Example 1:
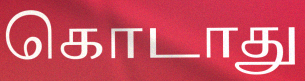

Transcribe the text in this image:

கொடாது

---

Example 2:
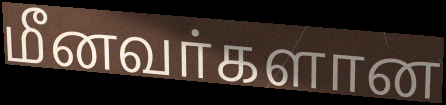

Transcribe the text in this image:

மீனவர்களான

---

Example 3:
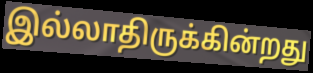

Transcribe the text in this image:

இல்லாதிருக்கின்றது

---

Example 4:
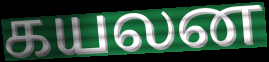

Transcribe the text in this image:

கயலன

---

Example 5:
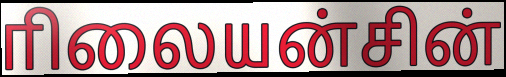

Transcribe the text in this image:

ரிலையன்சின்